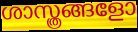
ശാസ്ത്രങ്ങളോ